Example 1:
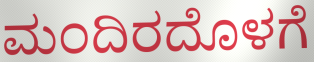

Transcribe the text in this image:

ಮಂದಿರದೊಳಗೆ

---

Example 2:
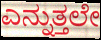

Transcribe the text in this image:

ಎನ್ನುತ್ತಲೇ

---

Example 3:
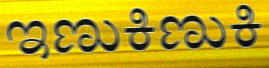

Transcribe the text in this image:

ಇಣುಕಿಣುಕಿ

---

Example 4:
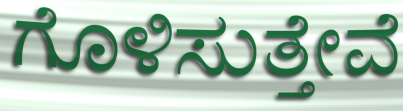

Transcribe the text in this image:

ಗೊಳಿಸುತ್ತೇವೆ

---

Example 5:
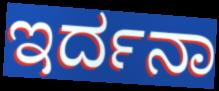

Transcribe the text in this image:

ಇರ್ದನಾ